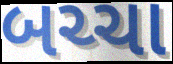
બચ્ચા